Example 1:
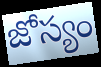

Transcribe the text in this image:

జోస్యం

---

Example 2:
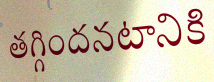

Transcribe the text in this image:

తగ్గిందనటానికి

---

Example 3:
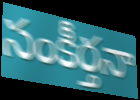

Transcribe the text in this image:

సంకీర్తనా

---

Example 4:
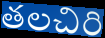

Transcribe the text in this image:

తలచిరి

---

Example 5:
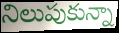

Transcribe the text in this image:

నిలుపుకున్నా